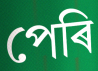
পেৰি